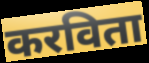
करविता